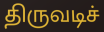
திருவடிச்